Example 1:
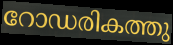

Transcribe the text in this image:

റോഡരികത്തു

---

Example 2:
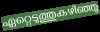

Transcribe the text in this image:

ഏറ്റെടുത്തുകഴിഞ്ഞു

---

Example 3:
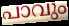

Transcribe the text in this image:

പാവും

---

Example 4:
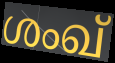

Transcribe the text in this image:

ശംഖ്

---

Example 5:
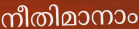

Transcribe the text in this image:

നീതിമാനാം